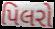
પિલરો